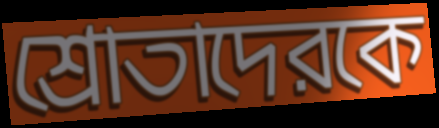
শ্রোতাদেরকে